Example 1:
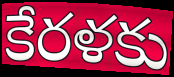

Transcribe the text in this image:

కేరళకు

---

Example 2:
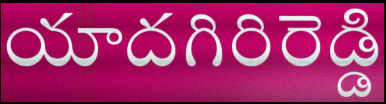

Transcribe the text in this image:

యాదగిరిరెడ్డి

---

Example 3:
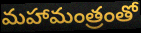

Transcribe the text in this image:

మహామంత్రంతో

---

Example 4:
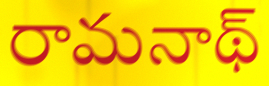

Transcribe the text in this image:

రామనాథ్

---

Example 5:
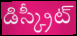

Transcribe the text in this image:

డిస్క్రీట్